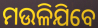
ମଉଳିଯିବେ